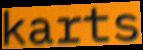
karts